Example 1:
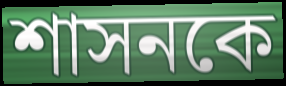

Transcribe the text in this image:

শাসনকে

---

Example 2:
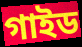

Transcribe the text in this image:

গাইড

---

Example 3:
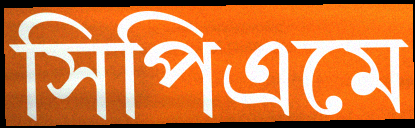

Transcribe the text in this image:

সিপিএমে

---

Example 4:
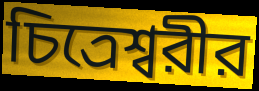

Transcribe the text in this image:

চিত্রেশ্বরীর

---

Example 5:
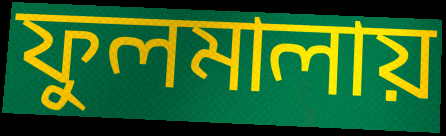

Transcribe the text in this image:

ফুলমালায়